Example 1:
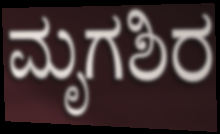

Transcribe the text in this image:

ಮೃಗಶಿರ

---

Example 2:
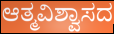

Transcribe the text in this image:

ಆತ್ಮವಿಶ್ವಾಸದ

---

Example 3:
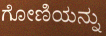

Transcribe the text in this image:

ಗೋಣಿಯನ್ನು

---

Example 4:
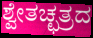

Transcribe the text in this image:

ಶ್ವೇತಚ್ಛತ್ರದ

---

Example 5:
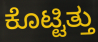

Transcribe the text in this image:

ಕೊಟ್ಟಿತ್ತು